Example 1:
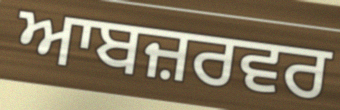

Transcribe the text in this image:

ਆਬਜ਼ਰਵਰ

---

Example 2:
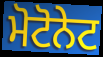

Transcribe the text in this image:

ਮੋਟੋਨੇਟ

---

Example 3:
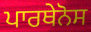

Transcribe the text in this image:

ਪਾਰਥੇਨੋਸ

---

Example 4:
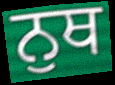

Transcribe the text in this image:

ਨੁਥ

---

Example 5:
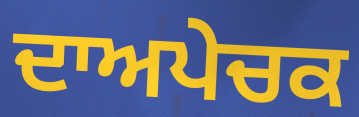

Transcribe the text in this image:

ਦਾਅਪੇਚਕ